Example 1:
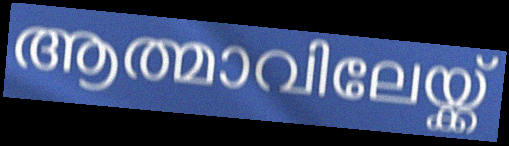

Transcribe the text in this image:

ആത്മാവിലേയ്ക്ക്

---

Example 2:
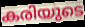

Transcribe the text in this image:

കരിയുടെ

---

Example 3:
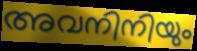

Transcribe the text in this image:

അവനിനിയും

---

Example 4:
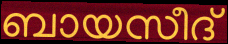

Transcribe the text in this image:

ബായസീദ്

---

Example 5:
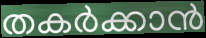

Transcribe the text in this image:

തകർക്കാൻ